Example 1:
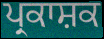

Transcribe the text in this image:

ਪ੍ਰਕਾਸ਼ਕ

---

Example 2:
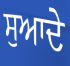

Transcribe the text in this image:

ਸੁਆਦੇ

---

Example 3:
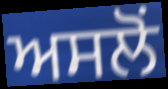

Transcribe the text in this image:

ਅਸਲੋਂ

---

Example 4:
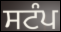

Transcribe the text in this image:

ਸਟੰਪ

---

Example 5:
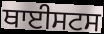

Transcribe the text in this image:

ਥਾਈਸਟਸ